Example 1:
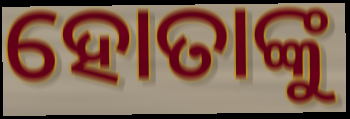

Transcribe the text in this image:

ହୋତାଙ୍କୁ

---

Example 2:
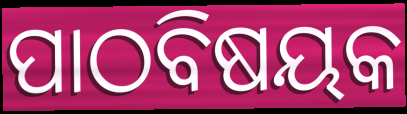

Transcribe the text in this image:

ପାଠବିଷୟକ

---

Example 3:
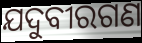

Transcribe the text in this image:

ଯଦୁବୀରଗଣ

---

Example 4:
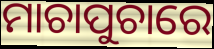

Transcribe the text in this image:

ମାଚାପୁଚାରେ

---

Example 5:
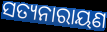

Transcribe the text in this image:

ସତ୍ଯନାରାୟଣ